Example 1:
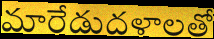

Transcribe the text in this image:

మారేడుదళాలతో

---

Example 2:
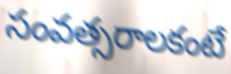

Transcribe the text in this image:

సంవత్సరాలకంటే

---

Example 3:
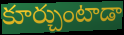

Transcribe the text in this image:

కూర్చుంటాడా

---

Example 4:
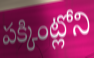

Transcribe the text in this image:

పక్కింట్లోని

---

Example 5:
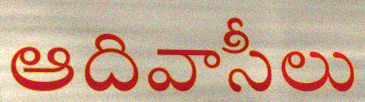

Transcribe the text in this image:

ఆదివాసీలు